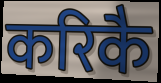
करिकै